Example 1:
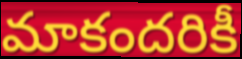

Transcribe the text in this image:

మాకందరికీ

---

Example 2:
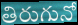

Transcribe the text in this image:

తిరుగునో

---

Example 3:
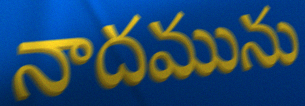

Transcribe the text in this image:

నాదమును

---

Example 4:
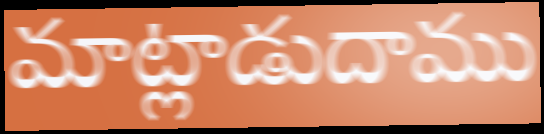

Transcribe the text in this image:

మాట్లాడుదాము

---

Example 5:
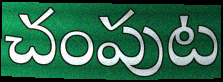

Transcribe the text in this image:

చంపుట